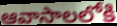
ఆవాసాలలోకి